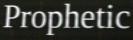
Prophetic